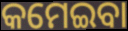
କମେଇବା